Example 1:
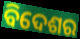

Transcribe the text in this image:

ବିଦେଶର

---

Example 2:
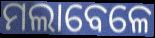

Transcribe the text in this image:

ମଲାବେଳେ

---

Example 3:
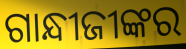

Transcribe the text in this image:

ଗାନ୍ଧୀଜୀଙ୍କର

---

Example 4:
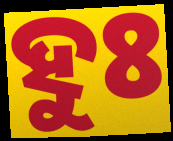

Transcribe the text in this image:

ହୁଃ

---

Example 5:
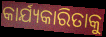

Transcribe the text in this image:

କାର୍ଯ୍ୟକାରିତାକୁ